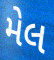
મેલ